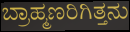
ಬ್ರಾಹ್ಮಣರಿಗಿತ್ತನು